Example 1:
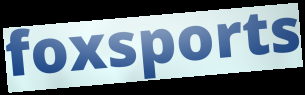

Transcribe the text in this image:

foxsports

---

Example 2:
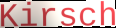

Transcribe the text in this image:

Kirsch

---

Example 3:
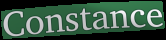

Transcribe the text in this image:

Constance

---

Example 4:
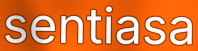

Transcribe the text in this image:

sentiasa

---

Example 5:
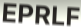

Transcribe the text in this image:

EPRLF